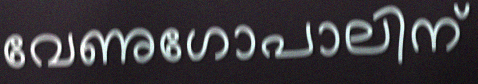
വേണുഗോപാലിന്